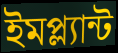
ইমপ্ল্যান্ট